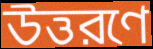
উত্তরণে